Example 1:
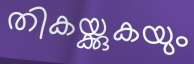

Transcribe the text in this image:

തികയ്ക്കുകയും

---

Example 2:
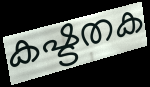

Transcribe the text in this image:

കഷ്ടതക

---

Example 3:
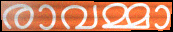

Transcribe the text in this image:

രാവമ്മാ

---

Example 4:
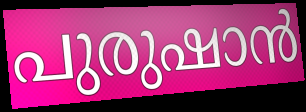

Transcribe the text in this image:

പുരുഷാൻ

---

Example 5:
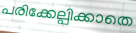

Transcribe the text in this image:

പരിക്കേല്പിക്കാതെ